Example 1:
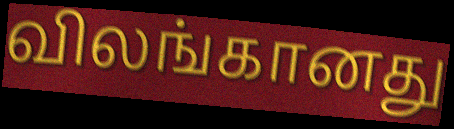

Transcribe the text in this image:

விலங்கானது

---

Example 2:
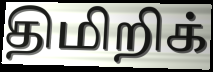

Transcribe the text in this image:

திமிறிக்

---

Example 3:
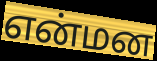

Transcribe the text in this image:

என்மன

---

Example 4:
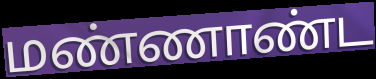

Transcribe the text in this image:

மண்ணாண்ட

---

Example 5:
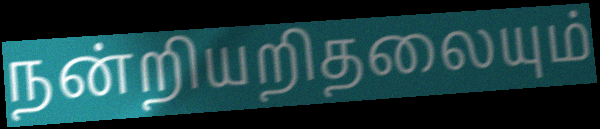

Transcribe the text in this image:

நன்றியறிதலையும்